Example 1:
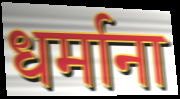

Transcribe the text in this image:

धर्माना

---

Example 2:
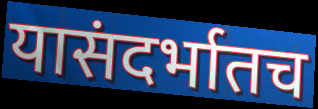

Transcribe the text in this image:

यासंदर्भातच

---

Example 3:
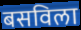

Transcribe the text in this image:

बसविला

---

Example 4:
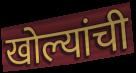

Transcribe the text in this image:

खोल्यांची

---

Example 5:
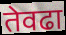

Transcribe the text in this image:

तेवढा